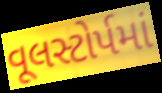
વૂલસ્ટોર્પમાં